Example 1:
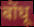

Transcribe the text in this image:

बोंधू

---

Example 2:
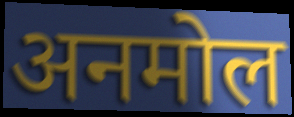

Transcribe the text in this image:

अनमोल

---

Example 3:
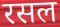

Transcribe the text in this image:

रसल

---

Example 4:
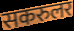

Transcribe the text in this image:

सकरुलर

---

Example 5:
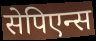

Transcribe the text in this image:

सेपिएन्स